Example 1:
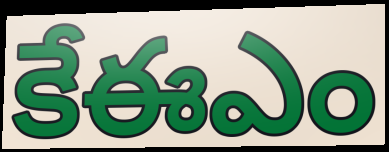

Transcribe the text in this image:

కేఈఎం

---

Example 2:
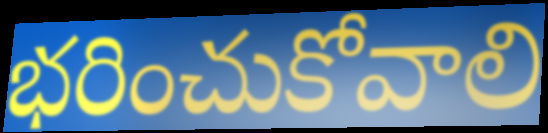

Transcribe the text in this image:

భరించుకోవాలి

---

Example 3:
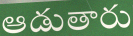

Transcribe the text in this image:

ఆడుతారు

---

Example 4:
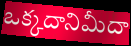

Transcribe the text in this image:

ఒక్కదానిమీదా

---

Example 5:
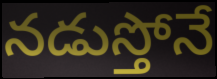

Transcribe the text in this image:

నడుస్తోనే